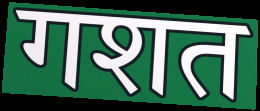
गशत